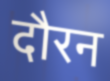
दौरन